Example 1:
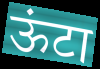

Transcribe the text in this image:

ऊंटा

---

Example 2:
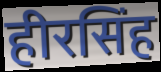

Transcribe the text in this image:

हीरसिंह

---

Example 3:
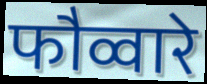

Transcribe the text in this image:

फौव्वारे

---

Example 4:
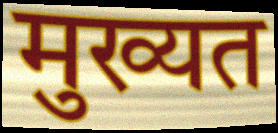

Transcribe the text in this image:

मुख्‍यत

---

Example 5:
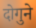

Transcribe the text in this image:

दोगुने